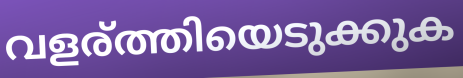
വളര്ത്തിയെടുക്കുക